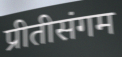
प्रीतीसंगम